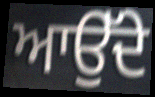
ਆਉੱਦੇ